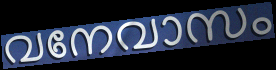
വനേവാസം